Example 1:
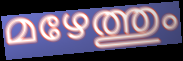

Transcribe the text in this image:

മഴേത്തും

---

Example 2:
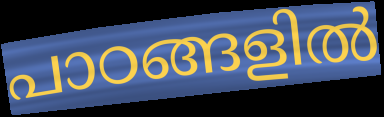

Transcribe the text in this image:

പാഠങ്ങളിൽ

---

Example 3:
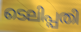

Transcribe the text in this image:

ടെലിപ്പതി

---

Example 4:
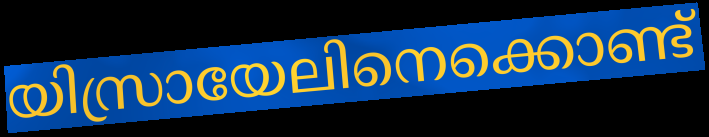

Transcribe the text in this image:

യിസ്രായേലിനെക്കൊണ്ട്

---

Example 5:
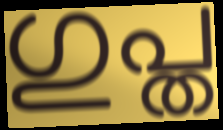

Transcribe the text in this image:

ഗുപ്ത